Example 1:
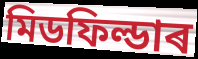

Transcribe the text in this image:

মিডফিল্ডাৰ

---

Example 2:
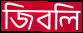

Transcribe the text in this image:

জিবলি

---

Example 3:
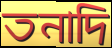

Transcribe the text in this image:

তনাদি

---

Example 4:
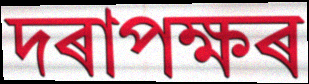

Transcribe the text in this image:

দৰাপক্ষৰ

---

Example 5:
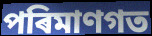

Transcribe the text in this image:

পৰিমাণগত